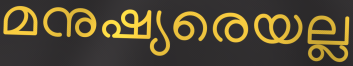
മനുഷ്യരെയല്ല